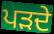
ਪੜਦੇ